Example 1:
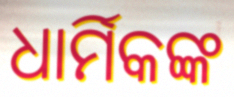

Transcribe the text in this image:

ଧାର୍ମିକଙ୍କ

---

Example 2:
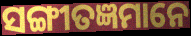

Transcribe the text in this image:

ସଙ୍ଗୀତଜ୍ଞମାନେ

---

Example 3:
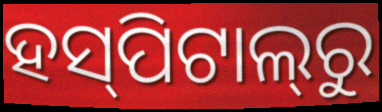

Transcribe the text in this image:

ହସ୍‌ପିଟାଲ୍‌ରୁ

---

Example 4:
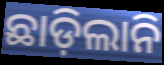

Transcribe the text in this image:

ଛାଡ଼ିଲାନି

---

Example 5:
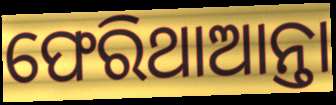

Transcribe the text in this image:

ଫେରିଥାଆନ୍ତା